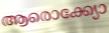
ആരൊക്ക്യോ